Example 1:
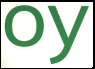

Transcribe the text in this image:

oy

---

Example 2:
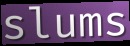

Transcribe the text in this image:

slums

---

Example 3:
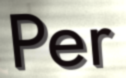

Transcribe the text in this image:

Per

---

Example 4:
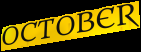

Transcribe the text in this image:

OCTOBER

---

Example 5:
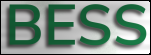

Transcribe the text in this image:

BESS